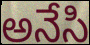
అనేసి